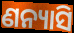
ଣନ୍ୟାସି